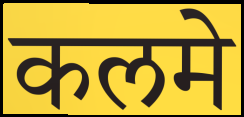
कलमे